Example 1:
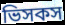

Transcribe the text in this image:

ভিসকস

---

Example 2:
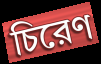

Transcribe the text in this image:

চিরেণ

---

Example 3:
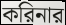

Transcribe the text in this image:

করিনার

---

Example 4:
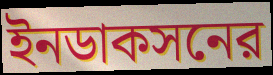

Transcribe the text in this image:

ইনডাকসনের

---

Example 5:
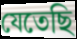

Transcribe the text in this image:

যেতেছি